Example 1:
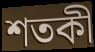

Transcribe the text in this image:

শতকী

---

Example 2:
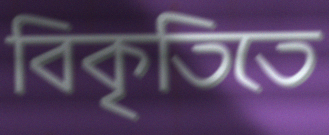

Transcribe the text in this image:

বিকৃতিতে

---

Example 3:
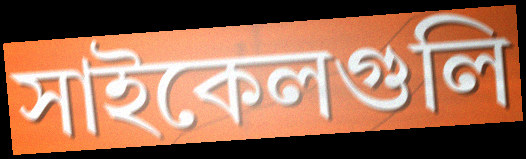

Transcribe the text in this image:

সাইকেলগুলি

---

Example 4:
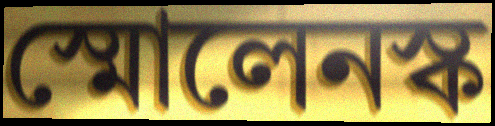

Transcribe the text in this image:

স্মোলেনস্ক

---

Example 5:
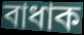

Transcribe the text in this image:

বাধাক